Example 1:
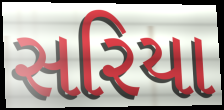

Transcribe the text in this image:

સરિયા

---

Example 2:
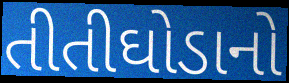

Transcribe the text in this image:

તીતીઘોડાનો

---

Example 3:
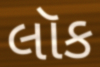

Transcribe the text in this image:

લૉક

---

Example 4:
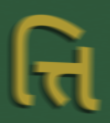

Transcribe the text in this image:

ત્તિ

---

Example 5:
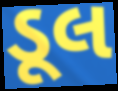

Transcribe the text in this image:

ડૂલ